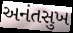
અનંતસુખ